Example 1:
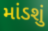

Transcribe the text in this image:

માંડશું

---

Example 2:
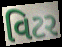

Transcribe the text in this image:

વિટર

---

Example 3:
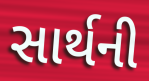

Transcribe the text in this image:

સાર્થની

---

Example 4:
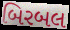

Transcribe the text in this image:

બિરબલ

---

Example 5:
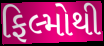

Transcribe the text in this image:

ફિલ્મોથી